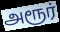
அரூர்